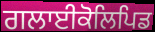
ਗਲਾਈਕੋਲਿਪਿਡ